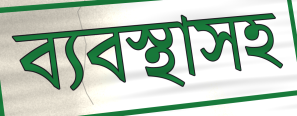
ব্যবস্থাসহ